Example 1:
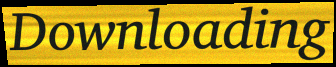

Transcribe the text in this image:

Downloading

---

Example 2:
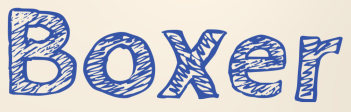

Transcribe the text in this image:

Boxer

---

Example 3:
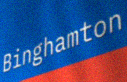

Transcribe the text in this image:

Binghamton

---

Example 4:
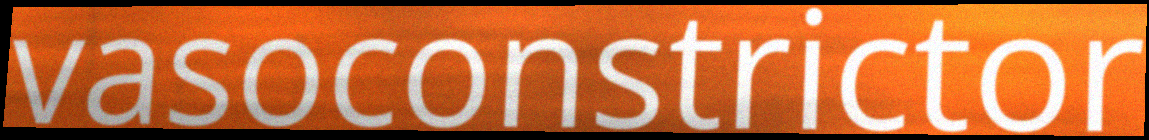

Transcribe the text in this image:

vasoconstrictor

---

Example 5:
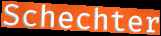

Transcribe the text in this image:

Schechter